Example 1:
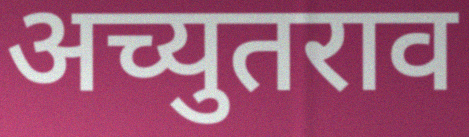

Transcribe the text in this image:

अच्युतराव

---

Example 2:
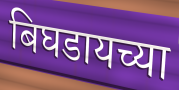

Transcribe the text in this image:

बिघडायच्या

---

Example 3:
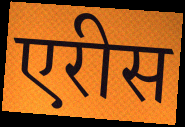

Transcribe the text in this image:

एरीस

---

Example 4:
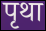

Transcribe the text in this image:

पृथा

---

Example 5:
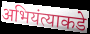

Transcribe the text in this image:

अभियंत्याकडे